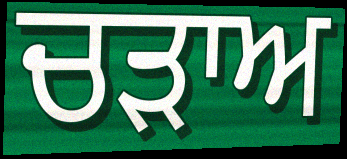
ਚੜਾਅ